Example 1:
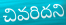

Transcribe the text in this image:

చివరిదని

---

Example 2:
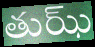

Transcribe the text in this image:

తుఝ్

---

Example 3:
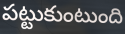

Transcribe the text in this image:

పట్టుకుంటుంది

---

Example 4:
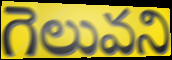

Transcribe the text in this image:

గెలువని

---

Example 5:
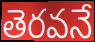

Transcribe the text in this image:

తెరవనే